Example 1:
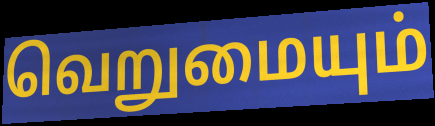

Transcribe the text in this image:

வெறுமையும்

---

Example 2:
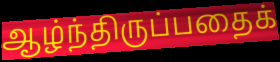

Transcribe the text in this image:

ஆழ்ந்திருப்பதைக்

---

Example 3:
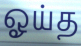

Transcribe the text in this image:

ஓய்த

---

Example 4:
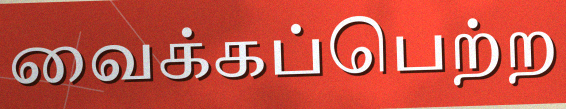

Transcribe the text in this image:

வைக்கப்பெற்ற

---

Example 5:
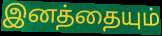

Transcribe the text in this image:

இனத்தையும்